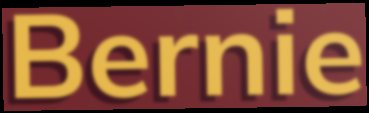
Bernie